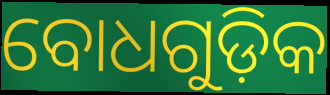
ବୋଧଗୁଡ଼ିକ